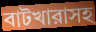
বাটখারাসহ